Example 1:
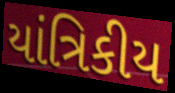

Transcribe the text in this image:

યાંત્રિકીય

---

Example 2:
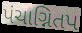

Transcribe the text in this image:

પંચાગ્નિતપ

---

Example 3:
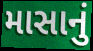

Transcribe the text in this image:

માસાનું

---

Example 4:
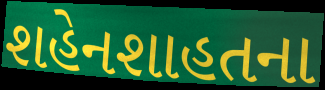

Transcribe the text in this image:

શહેનશાહતના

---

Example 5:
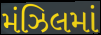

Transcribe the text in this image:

મંઝિલમાં